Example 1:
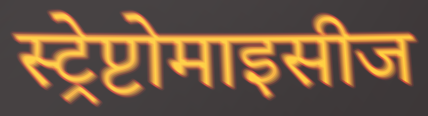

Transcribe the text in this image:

स्ट्रेप्टोमाइसीज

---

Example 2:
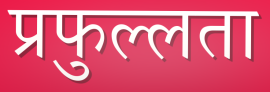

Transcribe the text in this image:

प्रफुल्लता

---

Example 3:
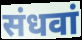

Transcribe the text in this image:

संधवां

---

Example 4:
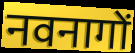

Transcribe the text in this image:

नवनागों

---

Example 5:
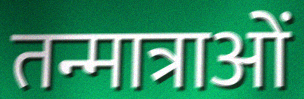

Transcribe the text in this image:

तन्मात्राओं